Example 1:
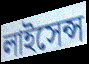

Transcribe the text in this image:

লাইসেন্স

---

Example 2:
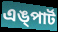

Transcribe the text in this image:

এঙ্পার্ট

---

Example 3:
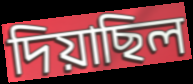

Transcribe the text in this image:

দিয়াছিল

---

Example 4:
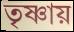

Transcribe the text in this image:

তৃষ্ণায়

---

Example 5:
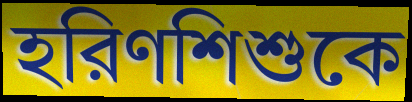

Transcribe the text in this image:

হরিণশিশুকে